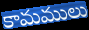
కామములు